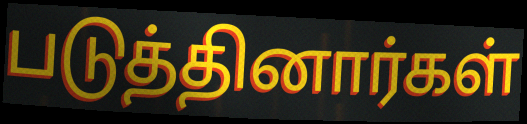
படுத்தினார்கள்